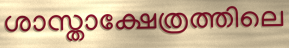
ശാസ്താക്ഷേത്രത്തിലെ